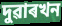
দুৱাৰখন